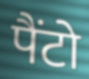
पैंटो